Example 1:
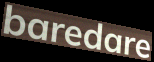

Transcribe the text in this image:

baredare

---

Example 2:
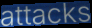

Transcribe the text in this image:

attacks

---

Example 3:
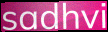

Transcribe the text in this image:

sadhvi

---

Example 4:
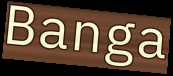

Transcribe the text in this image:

Banga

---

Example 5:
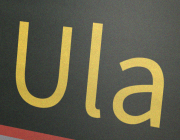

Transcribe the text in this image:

Ula